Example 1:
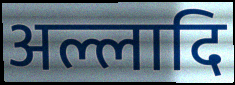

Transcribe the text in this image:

अल्लादि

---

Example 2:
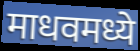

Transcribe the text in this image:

माधवमध्ये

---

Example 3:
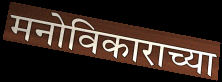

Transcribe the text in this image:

मनोविकाराच्या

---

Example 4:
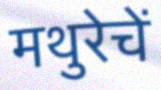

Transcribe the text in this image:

मथुरेचें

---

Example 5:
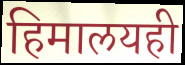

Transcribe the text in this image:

हिमालयही